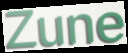
Zune